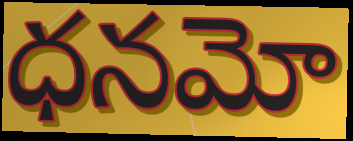
ధనమో